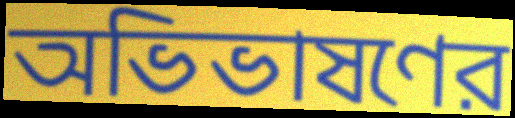
অভিভাষণের